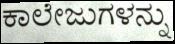
ಕಾಲೇಜುಗಳನ್ನು